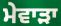
ਮੇਵਾੜਾ